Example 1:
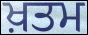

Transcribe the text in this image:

ਖ਼ਤਮ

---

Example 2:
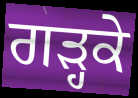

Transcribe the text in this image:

ਗੜ੍ਹਕੇ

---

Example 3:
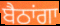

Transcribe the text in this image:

ਬੈਠਾਂਗਾ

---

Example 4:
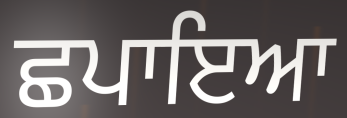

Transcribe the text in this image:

ਛਪਾਇਆ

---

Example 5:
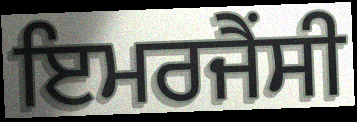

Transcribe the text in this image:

ਇਮਰਜੈਂਸੀ